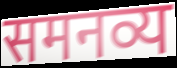
समनव्य